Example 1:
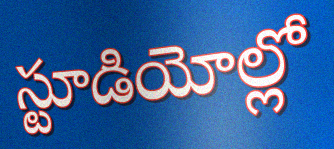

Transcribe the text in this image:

స్టూడియోల్లో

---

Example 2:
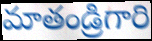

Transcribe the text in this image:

మాతండ్రిగారి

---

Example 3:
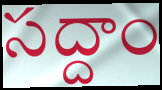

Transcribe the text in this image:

సద్దాం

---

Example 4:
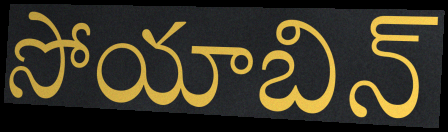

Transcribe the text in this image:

సోయాబిన్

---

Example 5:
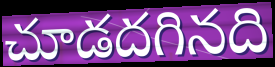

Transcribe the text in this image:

చూడదగినది